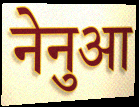
नेनुआ